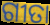
ଗୀତା